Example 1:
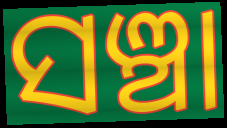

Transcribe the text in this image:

ସଞ୍ଚା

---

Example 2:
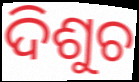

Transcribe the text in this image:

ଦିଶୁଚ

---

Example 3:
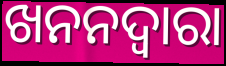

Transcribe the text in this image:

ଖନନଦ୍ୱାରା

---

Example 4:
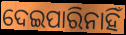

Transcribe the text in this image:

ଦେଇପାରିନାହିଁ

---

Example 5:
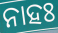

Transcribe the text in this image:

ନାହଃ